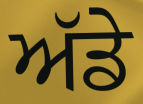
ਅੱਡੇ